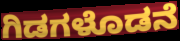
ಗಿಡಗಳೊಡನೆ